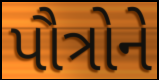
પૌત્રોને